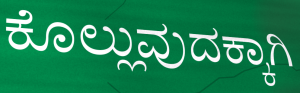
ಕೊಲ್ಲುವುದಕ್ಕಾಗಿ